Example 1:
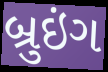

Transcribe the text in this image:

બ્રુઇંગ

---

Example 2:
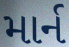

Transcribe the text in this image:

માર્ન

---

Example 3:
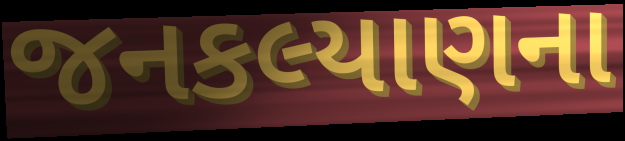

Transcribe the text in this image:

જનકલ્યાણના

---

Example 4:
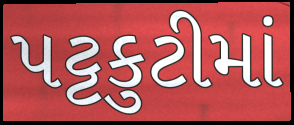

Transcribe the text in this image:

પટ્ટકુટીમાં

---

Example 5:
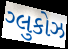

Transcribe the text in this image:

ગ્લુકોઝ